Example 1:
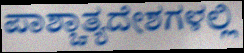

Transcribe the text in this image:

ಪಾಶ್ಚಾತ್ಯದೇಶಗಳಲ್ಲಿ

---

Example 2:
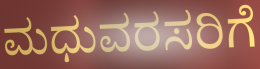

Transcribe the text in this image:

ಮಧುವರಸರಿಗೆ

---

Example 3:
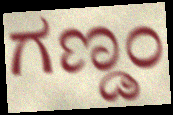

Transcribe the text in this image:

ಗಣ್ಡಂ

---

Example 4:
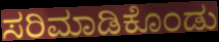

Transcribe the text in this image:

ಸರಿಮಾಡಿಕೊಂಡು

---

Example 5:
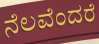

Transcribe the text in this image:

ನೆಲವೆಂದರೆ